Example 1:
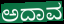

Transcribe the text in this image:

ಅದಾವ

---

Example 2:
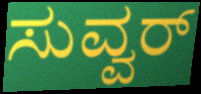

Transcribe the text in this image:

ಸುವ್ವರ್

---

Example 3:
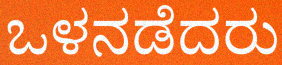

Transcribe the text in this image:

ಒಳನಡೆದರು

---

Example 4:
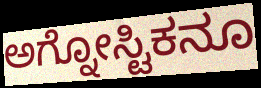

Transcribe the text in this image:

ಅಗ್ನೋಸ್ಟಿಕನೂ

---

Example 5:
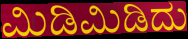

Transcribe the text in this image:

ಮಿಡಿಮಿಡಿದು